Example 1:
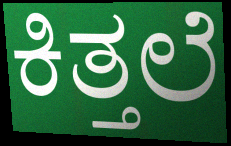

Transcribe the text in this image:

ಕಿತ್ತಲೆ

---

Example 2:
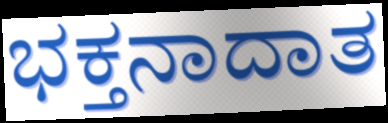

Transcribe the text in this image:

ಭಕ್ತನಾದಾತ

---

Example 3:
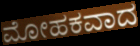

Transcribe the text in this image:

ಮೋಹಕವಾದ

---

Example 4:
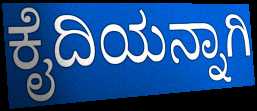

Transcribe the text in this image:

ಕೈದಿಯನ್ನಾಗಿ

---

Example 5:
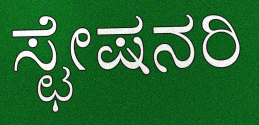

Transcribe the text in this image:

ಸ್ಟೇಷನರಿ